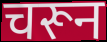
चरून